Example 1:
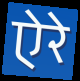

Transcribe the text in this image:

ऐरे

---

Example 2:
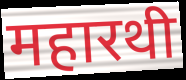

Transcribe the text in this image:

महारथी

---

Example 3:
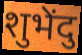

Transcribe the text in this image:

शुभेंदु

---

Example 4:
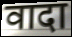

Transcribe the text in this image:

वादा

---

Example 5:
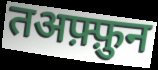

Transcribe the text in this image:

तअफ़्फ़ुन